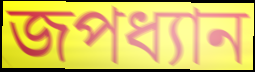
জপধ্যান